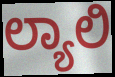
ಲ್ಯಾಲಿ